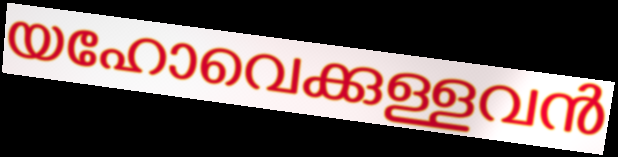
യഹോവെക്കുള്ളവൻ